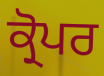
ਕ੍ਰੋਪਰ